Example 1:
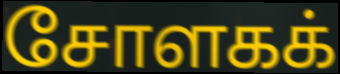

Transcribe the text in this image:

சோளகக்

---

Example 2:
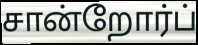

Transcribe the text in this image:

சான்றோர்ப்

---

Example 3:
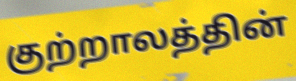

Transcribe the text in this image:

குற்றாலத்தின்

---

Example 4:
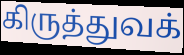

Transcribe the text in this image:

கிருத்துவக்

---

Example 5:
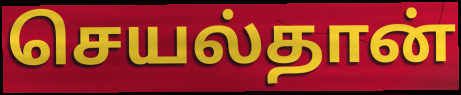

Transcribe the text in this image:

செயல்தான்